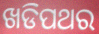
ଖଡିପଥର